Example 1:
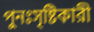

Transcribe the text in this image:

পুনঃসৃষ্টিকারী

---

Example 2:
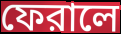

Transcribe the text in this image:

ফেরালে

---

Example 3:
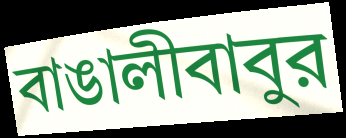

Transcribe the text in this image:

বাঙালীবাবুর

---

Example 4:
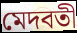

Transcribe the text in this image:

মেদবতী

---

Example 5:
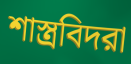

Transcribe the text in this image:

শাস্ত্রবিদরা